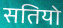
सतियो